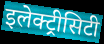
इलेक्ट्रीसिटी